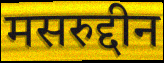
मसरुद्दीन